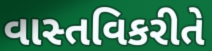
વાસ્તવિકરીતે